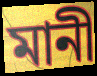
মানী